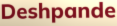
Deshpande